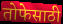
तोफेसाठी